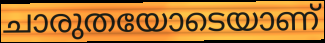
ചാരുതയോടെയാണ്